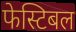
फेस्टिबल